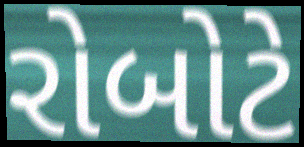
રોબોટે